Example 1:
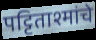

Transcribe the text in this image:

पट्टिताश्मांचे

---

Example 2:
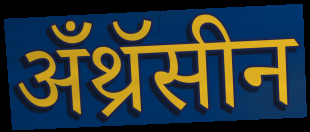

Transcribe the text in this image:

अँथ्रॅसीन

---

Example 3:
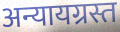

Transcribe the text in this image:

अन्यायग्रस्त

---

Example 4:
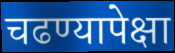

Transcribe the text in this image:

चढण्यापेक्षा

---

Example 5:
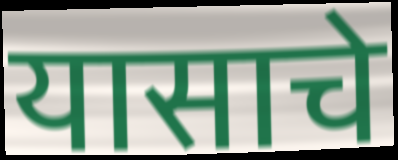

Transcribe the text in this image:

यासाचे